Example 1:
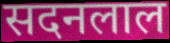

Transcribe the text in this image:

सदनलाल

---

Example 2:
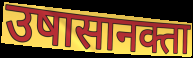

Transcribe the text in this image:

उषासानक्ता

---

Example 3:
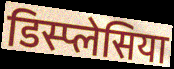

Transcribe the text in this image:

डिस्प्लेसिया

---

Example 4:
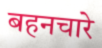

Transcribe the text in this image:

बहनचारे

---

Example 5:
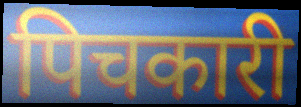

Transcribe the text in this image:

पिचकारी